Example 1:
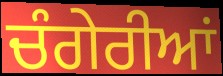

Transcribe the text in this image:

ਚੰਗੇਰੀਆਂ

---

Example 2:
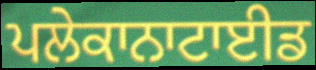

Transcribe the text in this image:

ਪਲੇਕਾਨਾਟਾਈਡ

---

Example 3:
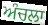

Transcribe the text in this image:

ਅੰਚਲਾ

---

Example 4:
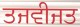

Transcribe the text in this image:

ਤਜਵੀਜਤ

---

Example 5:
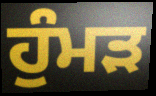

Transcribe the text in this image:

ਹੁੰਮੜ